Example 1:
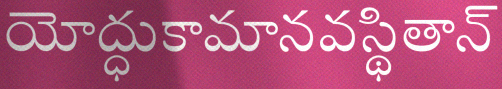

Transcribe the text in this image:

యోద్ధుకామానవస్థితాన్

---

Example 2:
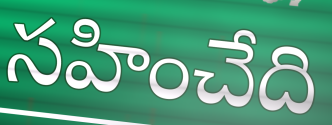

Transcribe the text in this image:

సహించేది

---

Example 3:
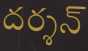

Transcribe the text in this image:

దర్శన్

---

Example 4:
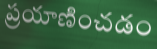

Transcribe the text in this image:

ప్రయాణించడం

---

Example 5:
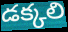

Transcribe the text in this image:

డక్కలి